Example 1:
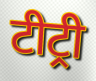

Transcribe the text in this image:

टीट्री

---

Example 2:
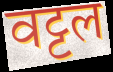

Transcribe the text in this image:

वट्टल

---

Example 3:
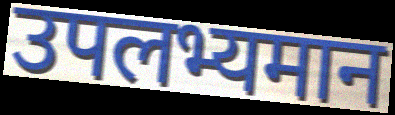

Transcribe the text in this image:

उपलभ्यमान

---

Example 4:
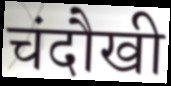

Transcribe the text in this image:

चंदौखी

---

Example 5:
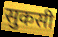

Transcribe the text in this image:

सुकसी